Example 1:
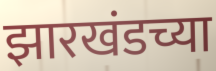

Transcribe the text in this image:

झारखंडच्या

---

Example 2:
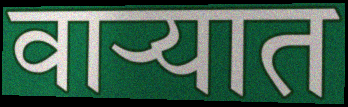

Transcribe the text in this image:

वाऱ्यात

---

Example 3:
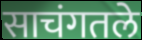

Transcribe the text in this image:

साचंगतले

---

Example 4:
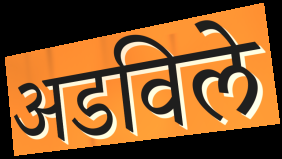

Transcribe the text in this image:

अडविले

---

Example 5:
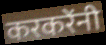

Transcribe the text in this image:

करकरेंनी